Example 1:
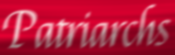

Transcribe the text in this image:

Patriarchs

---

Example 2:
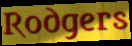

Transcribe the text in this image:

Rodgers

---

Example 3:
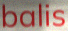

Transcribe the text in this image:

balis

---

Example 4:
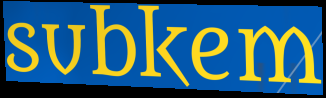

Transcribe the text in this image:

subkem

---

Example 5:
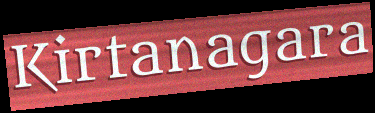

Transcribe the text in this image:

Kirtanagara